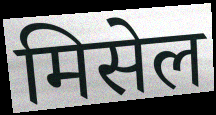
मिसेल